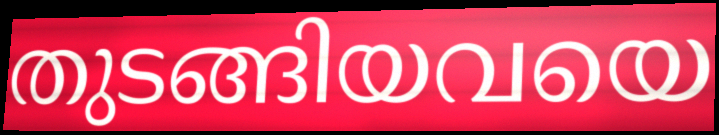
തുടങ്ങിയവയെ